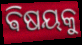
ଵିଷୟକୁ